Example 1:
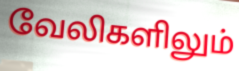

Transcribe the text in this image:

வேலிகளிலும்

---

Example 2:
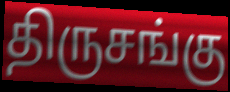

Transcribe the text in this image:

திருசங்கு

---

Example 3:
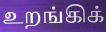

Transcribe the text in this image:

உறங்கிக்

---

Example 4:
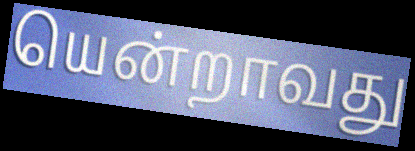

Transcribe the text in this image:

யென்றாவது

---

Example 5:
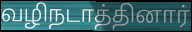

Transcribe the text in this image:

வழிநடாத்தினார்